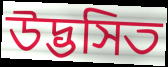
উদ্ভসিত